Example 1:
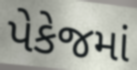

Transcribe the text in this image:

પેકેજમાં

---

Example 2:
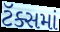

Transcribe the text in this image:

ટૅક્સમાં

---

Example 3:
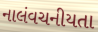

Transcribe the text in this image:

નાલંવચનીયતા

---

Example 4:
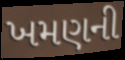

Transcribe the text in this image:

ખમણની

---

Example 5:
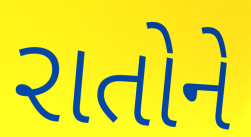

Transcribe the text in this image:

રાતોને